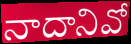
నాదానివో